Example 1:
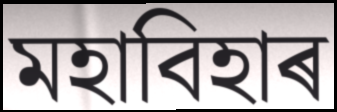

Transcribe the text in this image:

মহাবিহাৰ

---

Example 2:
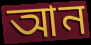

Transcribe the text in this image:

আন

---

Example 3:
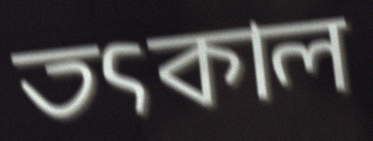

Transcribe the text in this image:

তৎকাল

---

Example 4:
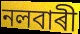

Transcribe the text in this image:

নলবাৰী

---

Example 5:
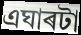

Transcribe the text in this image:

এঘাৰটা